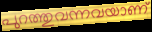
പുറത്തുവന്നവയാണ്